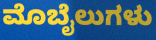
ಮೊಬೈಲುಗಳು